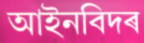
আইনবিদৰ